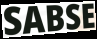
SABSE